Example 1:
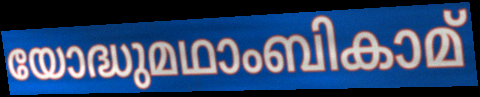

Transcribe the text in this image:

യോദ്ധുമഥാംബികാമ്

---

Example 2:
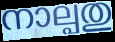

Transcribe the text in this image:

നാല്പതു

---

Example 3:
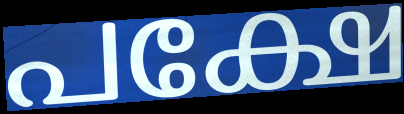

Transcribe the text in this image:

പക്ഷേ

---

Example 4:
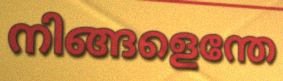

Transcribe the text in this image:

നിങ്ങളെന്തേ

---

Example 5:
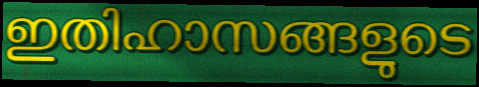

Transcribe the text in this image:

ഇതിഹാസങ്ങളുടെ